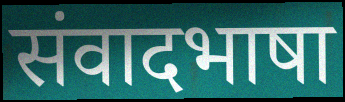
संवादभाषा